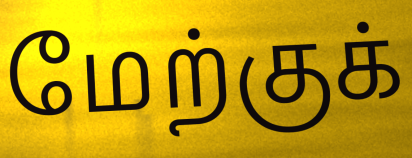
மேற்குக்